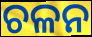
ଚଳନ